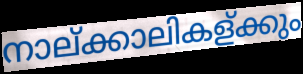
നാല്ക്കാലികള്ക്കും